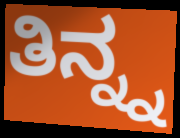
ತಿನ್ನ್ನ